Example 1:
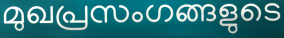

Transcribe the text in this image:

മുഖപ്രസംഗങ്ങളുടെ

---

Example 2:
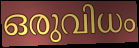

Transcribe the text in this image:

ഒരുവിധം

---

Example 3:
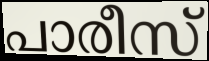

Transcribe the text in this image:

പാരീസ്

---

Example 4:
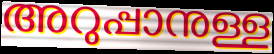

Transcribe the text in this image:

അറുപ്പാനുള്ള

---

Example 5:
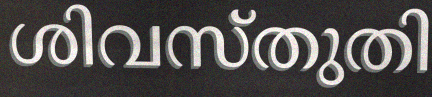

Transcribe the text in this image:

ശിവസ്തുതി